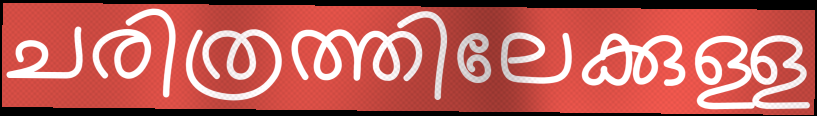
ചരിത്രത്തിലേക്കുള്ള